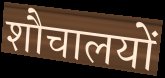
शौचालयों